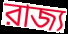
রাজ্য